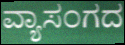
ವ್ಯಾಸಂಗದ